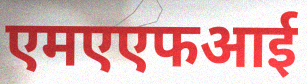
एमएएफआई